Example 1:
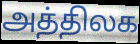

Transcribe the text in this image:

அத்திலக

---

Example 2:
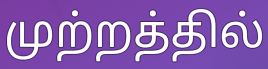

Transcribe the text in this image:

முற்றத்தில்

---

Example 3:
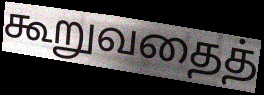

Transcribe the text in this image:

கூறுவதைத்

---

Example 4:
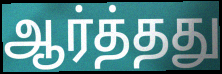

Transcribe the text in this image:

ஆர்த்தது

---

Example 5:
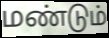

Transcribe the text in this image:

மண்டும்